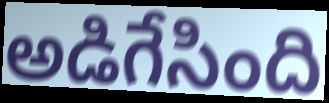
అడిగేసింది